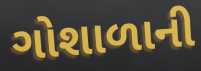
ગોશાળાની